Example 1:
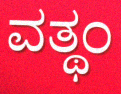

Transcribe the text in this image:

ವತ್ಥಂ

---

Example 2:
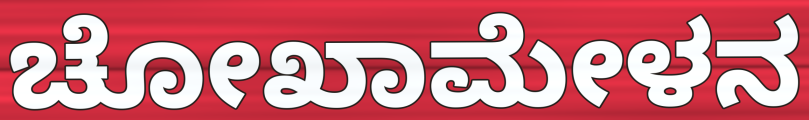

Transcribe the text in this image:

ಚೋಖಾಮೇಳನ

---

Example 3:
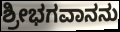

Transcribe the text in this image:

ಶ್ರೀಭಗವಾನನು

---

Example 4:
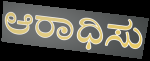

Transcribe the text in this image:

ಆರಾಧಿಸು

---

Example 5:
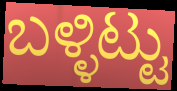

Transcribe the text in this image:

ಬಳ್ಳಿಟ್ಟು